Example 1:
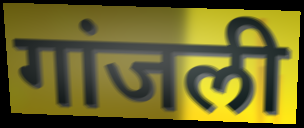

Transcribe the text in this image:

गांजली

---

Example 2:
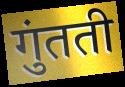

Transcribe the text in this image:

गुंतती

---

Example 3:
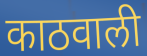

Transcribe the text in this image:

काठवाली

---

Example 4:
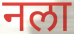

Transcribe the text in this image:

नला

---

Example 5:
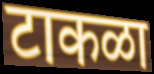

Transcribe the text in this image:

टाकळा